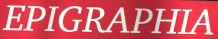
EPIGRAPHIA